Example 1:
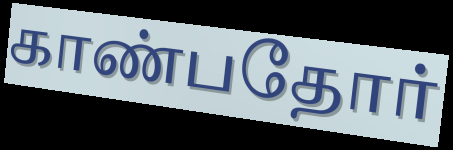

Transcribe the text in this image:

காண்பதோர்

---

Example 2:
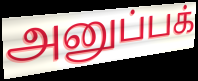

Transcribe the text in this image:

அனுப்பக்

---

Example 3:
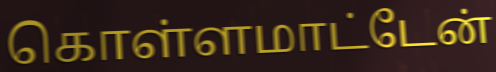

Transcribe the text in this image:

கொள்ளமாட்டேன்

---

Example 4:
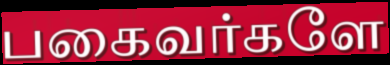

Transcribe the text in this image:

பகைவர்களே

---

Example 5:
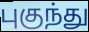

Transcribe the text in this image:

புகுந்து